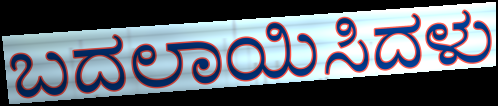
ಬದಲಾಯಿಸಿದಳು